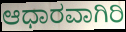
ಆಧಾರವಾಗಿರಿ